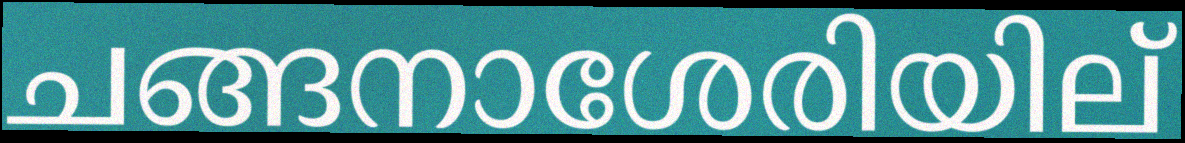
ചങ്ങനാശേരിയില്